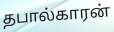
தபால்காரன்